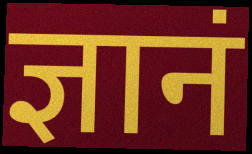
ज्ञानं